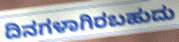
ದಿನಗಳಾಗಿರಬಹುದು